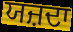
ਯਜ਼ਦਾ